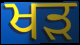
ਖੜ